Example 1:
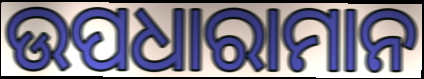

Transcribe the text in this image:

ଉପଧାରାମାନ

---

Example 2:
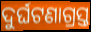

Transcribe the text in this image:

ଦୁର୍ଘଟଣାଗ୍ରସ୍ତ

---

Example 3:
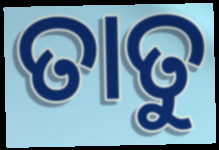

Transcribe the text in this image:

ତାତୁ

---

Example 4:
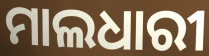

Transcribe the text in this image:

ମାଲଧାରୀ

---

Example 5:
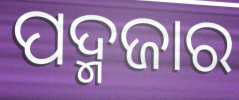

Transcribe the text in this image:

ପଦ୍ମଜାର